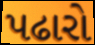
પઢારો